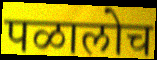
पळालोच